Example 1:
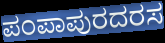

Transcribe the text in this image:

ಪಂಪಾಪುರದರಸ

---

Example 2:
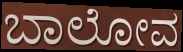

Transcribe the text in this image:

ಬಾಲೋವ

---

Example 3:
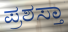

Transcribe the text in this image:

ಪ್ರಶಸ್ತಾ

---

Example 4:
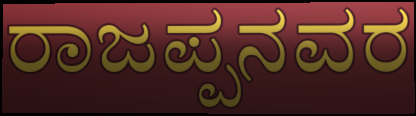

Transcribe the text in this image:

ರಾಜಪ್ಪನವರ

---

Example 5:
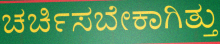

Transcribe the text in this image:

ಚರ್ಚಿಸಬೇಕಾಗಿತ್ತು